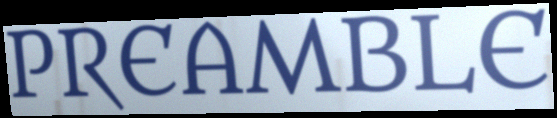
PREAMBLE